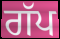
ਗੱਪ